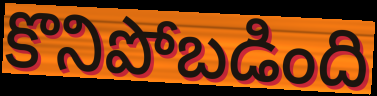
కొనిపోబడింది